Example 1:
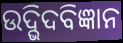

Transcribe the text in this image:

ଉଦ୍ଭିଦବିଜ୍ଞାନ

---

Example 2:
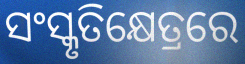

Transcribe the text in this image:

ସଂସ୍କୃତିକ୍ଷେତ୍ରରେ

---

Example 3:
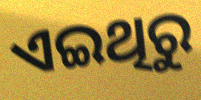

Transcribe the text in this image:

ଏଇଥିରୁ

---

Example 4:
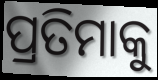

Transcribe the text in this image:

ପ୍ରତିମାକୁ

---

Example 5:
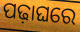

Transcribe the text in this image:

ପଢ଼ାଘରେ